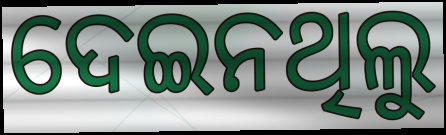
ଦେଇନଥିଲୁ